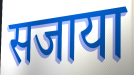
सजाया